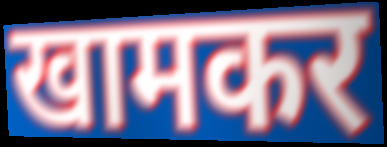
खामकर